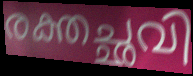
രക്തച്ഛവി